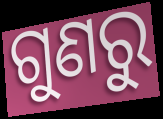
ଗୁଣରୁ